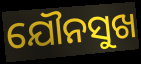
ଯୌନସୁଖ